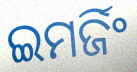
ଇମର୍ଜିଂ